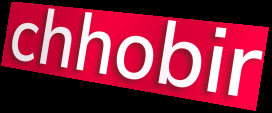
chhobir